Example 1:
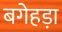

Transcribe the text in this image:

बगेहड़ा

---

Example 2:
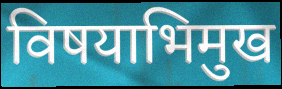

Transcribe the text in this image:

विषयाभिमुख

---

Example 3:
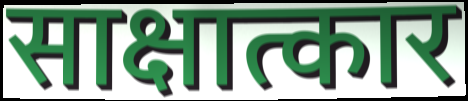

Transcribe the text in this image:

साक्षात्कार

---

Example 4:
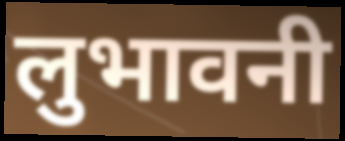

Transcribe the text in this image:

लुभावनी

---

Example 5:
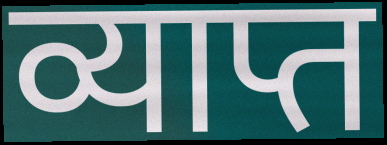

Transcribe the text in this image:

व्याप्त